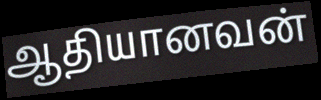
ஆதியானவன்